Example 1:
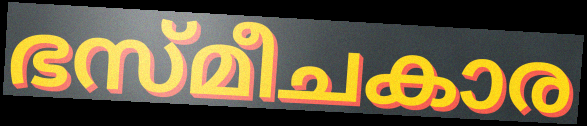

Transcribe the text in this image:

ഭസ്മീചകാര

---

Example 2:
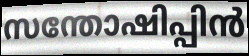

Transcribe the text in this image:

സന്തോഷിപ്പിൻ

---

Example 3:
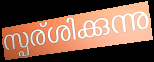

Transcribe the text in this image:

സ്പര്ശിക്കുന്നു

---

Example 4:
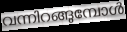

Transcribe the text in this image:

വന്നിറങ്ങുമ്പോൾ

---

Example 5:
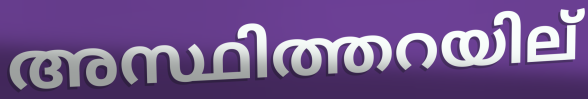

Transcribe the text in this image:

അസ്ഥിത്തറയില്